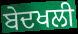
ਬੇਦਖਲੀ